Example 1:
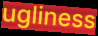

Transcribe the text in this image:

ugliness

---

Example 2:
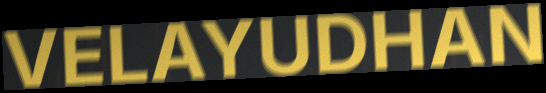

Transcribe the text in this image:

VELAYUDHAN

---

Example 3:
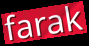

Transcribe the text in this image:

farak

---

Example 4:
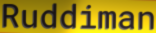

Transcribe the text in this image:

Ruddiman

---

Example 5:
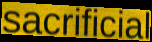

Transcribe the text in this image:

sacrificial